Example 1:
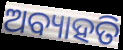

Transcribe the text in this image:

ଅବ୍ୟାହତି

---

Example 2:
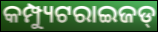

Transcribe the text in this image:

କମ୍ପ୍ୟୁଟରାଇଜଡ୍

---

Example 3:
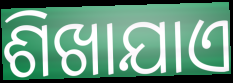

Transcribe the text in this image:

ଶିଖାଯାଏ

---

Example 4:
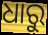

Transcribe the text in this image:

ଧାରୁ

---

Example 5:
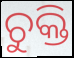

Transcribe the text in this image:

ଚୁକ୍ତି